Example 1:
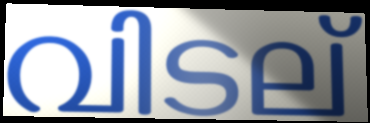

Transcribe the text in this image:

വിടല്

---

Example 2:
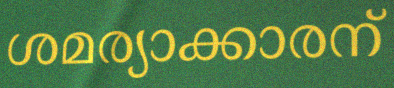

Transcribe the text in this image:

ശമര്യാക്കാരന്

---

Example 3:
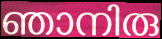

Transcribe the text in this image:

ഞാനിരു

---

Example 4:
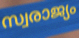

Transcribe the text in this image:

സ്വരാജ്യം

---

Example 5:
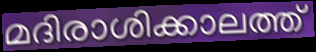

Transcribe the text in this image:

മദിരാശിക്കാലത്ത്